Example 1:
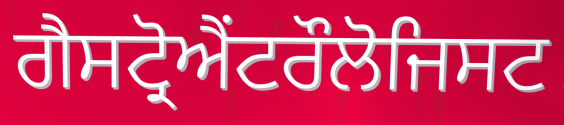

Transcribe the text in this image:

ਗੈਸਟ੍ਰੋਐਂਟਰੌਲੋਜਿਸਟ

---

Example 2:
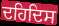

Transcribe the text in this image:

ਦਹਿਦਿਸ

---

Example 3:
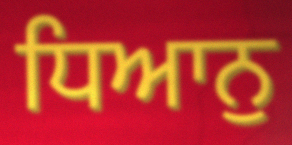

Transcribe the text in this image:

ਧਿਆਨੁ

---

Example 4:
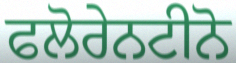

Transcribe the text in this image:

ਫਲੋਰੇਨਟੀਨੋ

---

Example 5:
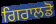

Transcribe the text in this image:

ਗਿਰਾਲਡੋ